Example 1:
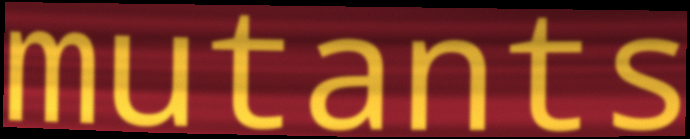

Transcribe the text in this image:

mutants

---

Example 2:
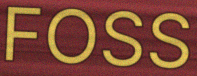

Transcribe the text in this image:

FOSS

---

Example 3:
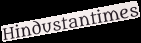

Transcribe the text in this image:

Hindustantimes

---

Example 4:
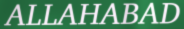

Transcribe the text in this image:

ALLAHABAD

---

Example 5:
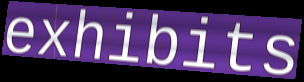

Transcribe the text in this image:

exhibits